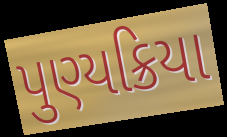
પુણ્યક્રિયા